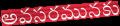
అవసరమునకు